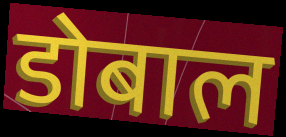
डोबाल